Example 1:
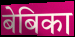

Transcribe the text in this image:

बेबिका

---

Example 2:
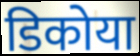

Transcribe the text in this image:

डिकोया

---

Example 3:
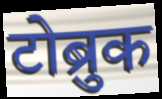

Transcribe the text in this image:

टोब्रुक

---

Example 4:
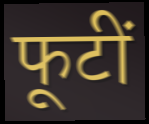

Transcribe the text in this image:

फूटीं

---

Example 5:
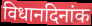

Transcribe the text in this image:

विधानदिनांक